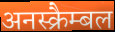
अनस्क्रैम्बल